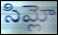
సిమ్లో